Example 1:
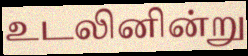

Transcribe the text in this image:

உடலினின்று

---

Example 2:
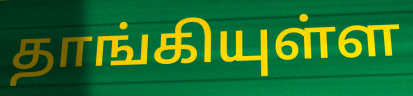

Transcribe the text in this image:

தாங்கியுள்ள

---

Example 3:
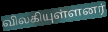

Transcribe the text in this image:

விலகியுள்ளனர்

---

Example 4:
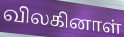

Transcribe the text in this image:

விலகினாள்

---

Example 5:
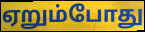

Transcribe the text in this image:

ஏறும்போது